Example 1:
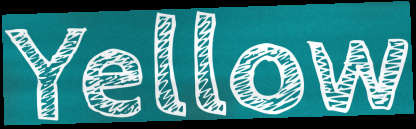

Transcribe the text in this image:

Yellow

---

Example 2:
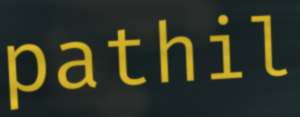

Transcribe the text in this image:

pathil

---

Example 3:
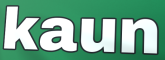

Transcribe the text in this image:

kaun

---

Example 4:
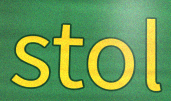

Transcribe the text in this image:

stol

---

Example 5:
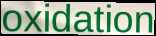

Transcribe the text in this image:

oxidation